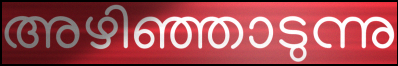
അഴിഞ്ഞാടുന്നു